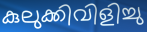
കുലുക്കിവിളിച്ചു